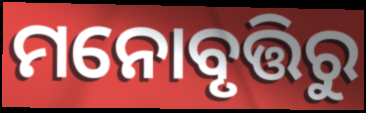
ମନୋବୃତ୍ତିରୁ